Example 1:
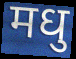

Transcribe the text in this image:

मधु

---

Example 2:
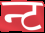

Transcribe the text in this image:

न्ट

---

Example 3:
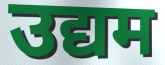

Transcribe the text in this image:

उद्यम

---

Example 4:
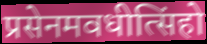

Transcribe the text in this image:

प्रसेनमवधीत्सिंहो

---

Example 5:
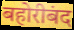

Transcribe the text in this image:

बहोरीबंद